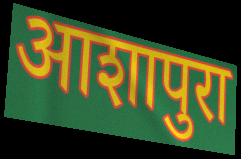
आशापुरा